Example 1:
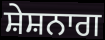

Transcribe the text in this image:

ਸ਼ੇਸ਼ਨਾਗ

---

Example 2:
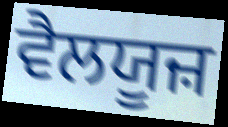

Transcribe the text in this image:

ਵੈਲਯੂਜ਼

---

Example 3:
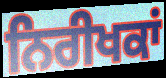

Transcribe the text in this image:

ਨਿਰੀਖਕਾਂ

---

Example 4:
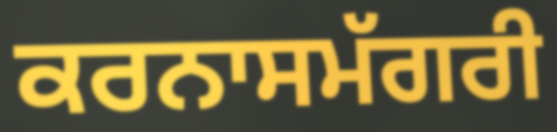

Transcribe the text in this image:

ਕਰਨਾਸਮੱਗਰੀ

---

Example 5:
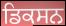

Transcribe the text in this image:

ਡਿਕਸਨ